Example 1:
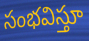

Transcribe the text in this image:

సంభవిస్తూ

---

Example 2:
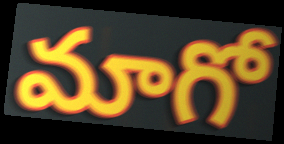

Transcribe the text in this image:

మాగో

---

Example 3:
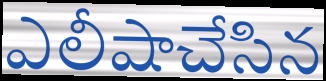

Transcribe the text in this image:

ఎలీషాచేసిన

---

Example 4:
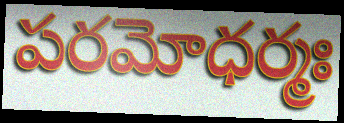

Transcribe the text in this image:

పరమోధర్మః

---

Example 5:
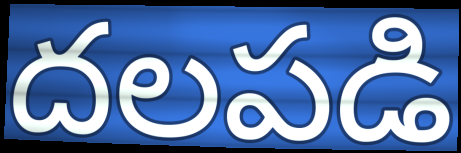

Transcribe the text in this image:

దలపడి